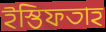
ইস্তিফতাহ